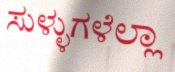
ಸುಳ್ಳುಗಳೆಲ್ಲಾ